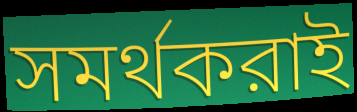
সমর্থকরাই